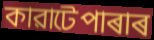
কাৱাটেপাৰাৰ